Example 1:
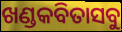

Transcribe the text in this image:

ଖଣ୍ଡକବିତାସବୁ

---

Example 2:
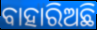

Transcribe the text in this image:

ବାହାରିଅଛି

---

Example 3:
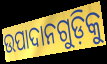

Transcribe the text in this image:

ଉପାଦାନଗୁଡ଼ିକୁ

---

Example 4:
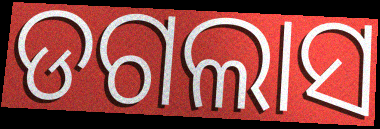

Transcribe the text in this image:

ଡଗଲାସ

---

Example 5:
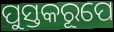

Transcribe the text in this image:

ପୁସ୍ତକରୂପେ